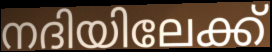
നദിയിലേക്ക്